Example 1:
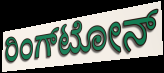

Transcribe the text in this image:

ರಿಂಗ್‌ಟೋನ್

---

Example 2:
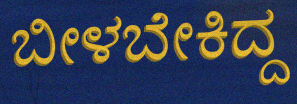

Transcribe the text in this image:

ಬೀಳಬೇಕಿದ್ದ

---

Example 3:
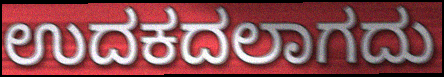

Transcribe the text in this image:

ಉದಕದಲಾಗದು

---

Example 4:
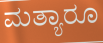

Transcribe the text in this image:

ಮತ್ಯಾರೂ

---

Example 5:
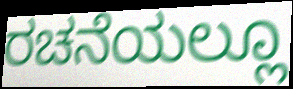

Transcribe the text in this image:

ರಚನೆಯಲ್ಲೂ